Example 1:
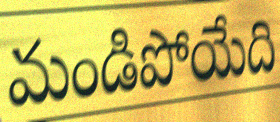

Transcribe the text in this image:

మండిపోయేది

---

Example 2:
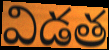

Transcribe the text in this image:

విడత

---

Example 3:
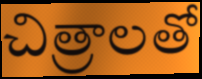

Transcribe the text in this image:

చిత్రాలతో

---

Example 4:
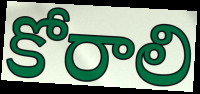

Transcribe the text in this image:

కోరాలి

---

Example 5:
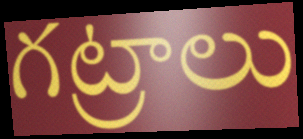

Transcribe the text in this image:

గట్రాలు